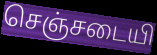
செஞ்சடையி